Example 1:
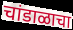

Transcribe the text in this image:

चांडाळाचा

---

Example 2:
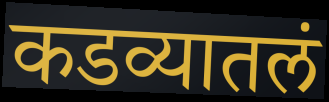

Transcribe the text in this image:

कडव्यातलं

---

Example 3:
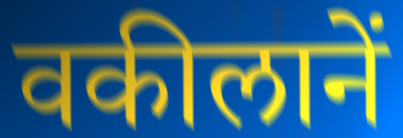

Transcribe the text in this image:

वकीलानें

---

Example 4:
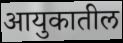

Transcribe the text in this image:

आयुकातील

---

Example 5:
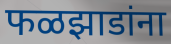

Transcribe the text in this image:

फळझाडांना